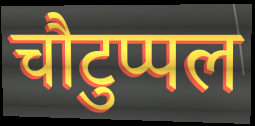
चौटुप्पल